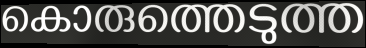
കൊരുത്തെടുത്ത